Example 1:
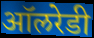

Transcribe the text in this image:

ऑलरेडी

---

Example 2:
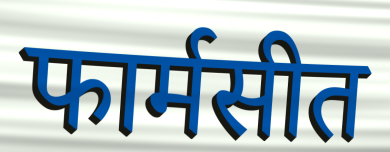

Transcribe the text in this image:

फार्मसीत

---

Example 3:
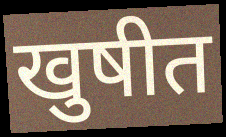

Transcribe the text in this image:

खुषीत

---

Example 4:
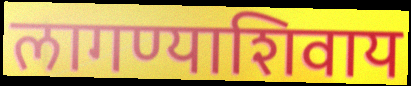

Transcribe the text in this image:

लागण्याशिवाय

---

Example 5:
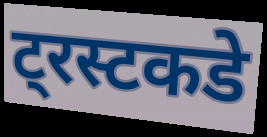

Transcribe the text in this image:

ट्रस्टकडे